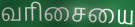
வரிசையை